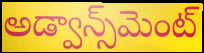
అడ్వాన్స్‌మెంట్